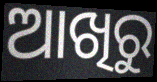
ଆଖିରୁ